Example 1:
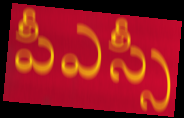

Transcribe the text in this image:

పీఎస్సీ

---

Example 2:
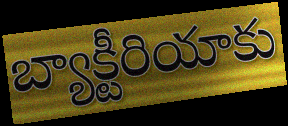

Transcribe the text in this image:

బ్యాక్టీరియాకు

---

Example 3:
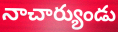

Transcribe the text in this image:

నాచార్యుండు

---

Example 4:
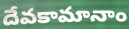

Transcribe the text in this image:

దేవకామానాం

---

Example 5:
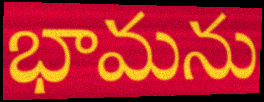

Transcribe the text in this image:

భామను